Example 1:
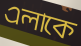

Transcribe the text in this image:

এলাকে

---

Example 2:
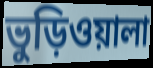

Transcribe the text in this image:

ভুড়িওয়ালা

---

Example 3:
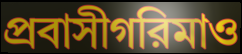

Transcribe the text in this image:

প্রবাসীগরিমাও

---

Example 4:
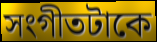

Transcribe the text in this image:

সংগীতটাকে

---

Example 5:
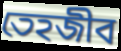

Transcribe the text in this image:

তেহজীব